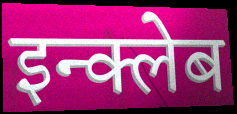
इन्क्लेब